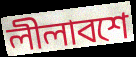
লীলাবশে